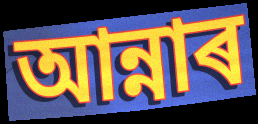
আন্নাৰ